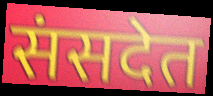
संसदेत